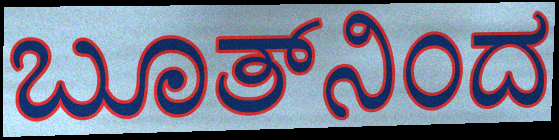
ಬೂತ್‌ನಿಂದ